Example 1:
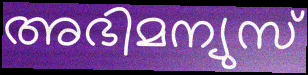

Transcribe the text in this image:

അഭിമന്യുസ്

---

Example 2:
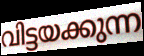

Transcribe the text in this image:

വിട്ടയക്കുന്ന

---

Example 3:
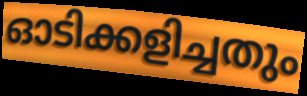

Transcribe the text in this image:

ഓടിക്കളിച്ചതും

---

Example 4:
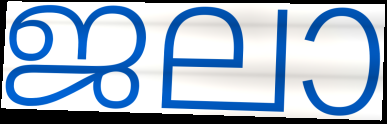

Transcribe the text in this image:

ജലാ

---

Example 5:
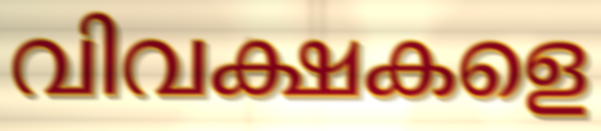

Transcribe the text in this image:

വിവക്ഷകളെ